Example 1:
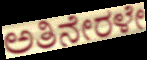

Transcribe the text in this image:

ಅತಿನೇರಳೇ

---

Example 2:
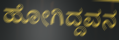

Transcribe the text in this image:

ಹೋಗಿದ್ದವನ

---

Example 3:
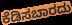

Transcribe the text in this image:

ಕೆಡಿಸಬಾರದು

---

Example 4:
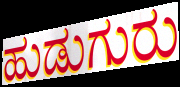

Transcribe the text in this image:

ಹುಡುಗುರು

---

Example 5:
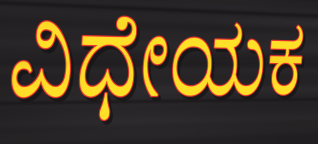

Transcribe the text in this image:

ವಿಧೇಯಕ